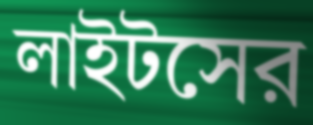
লাইটসের